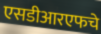
एसडीआरएफचे